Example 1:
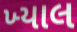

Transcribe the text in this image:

ખ્‍યાલ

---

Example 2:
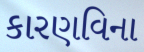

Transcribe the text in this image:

કારણવિના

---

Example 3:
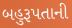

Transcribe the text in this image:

બહુરૂપતાની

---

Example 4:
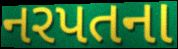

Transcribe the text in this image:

નરપતના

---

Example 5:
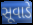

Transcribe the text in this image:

સૂવાડે